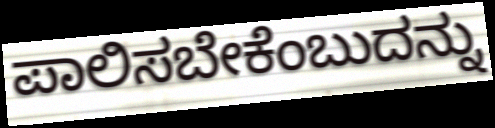
ಪಾಲಿಸಬೇಕೆಂಬುದನ್ನು